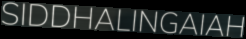
SIDDHALINGAIAH